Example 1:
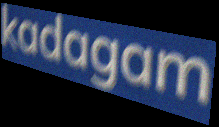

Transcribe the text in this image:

kadagam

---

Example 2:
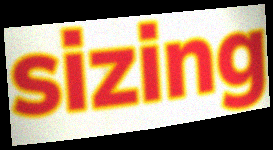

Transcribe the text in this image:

sizing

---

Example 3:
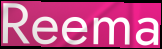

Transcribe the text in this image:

Reema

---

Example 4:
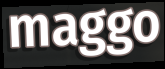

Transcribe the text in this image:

maggo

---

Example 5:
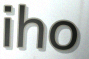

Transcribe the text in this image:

iho